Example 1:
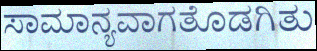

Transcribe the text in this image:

ಸಾಮಾನ್ಯವಾಗತೊಡಗಿತು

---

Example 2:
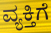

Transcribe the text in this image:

ವ್ಯಕ್ತಿಗೆ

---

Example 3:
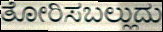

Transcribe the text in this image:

ತೋರಿಸಬಲ್ಲುದು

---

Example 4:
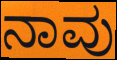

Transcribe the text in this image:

ನಾವು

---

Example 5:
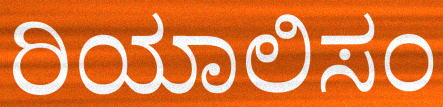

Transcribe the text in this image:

ರಿಯಾಲಿಸಂ